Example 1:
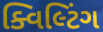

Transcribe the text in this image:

ક્વિલ્ટિંગ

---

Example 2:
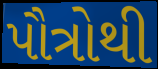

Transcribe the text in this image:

પૌત્રોથી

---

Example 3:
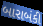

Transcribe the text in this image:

બારાબંકી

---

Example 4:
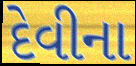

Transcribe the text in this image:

દેવીના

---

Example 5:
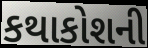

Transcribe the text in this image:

કથાકોશની